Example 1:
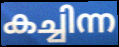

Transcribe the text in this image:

കച്ചിന്ന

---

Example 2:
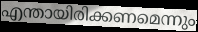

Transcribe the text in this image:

എന്തായിരിക്കണമെന്നും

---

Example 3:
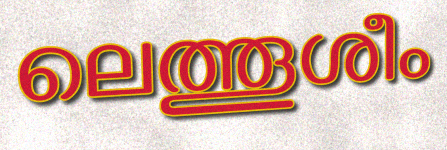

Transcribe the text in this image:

ലെത്തൂശീം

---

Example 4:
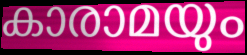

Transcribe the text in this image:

കാരാമയും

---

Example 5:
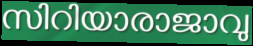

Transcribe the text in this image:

സിറിയാരാജാവു